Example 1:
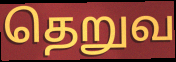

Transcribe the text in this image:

தெறுவ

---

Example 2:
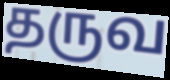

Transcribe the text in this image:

தருவ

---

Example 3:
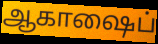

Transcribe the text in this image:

ஆகாஷைப்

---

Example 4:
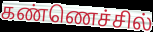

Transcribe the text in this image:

கண்ணெச்சில்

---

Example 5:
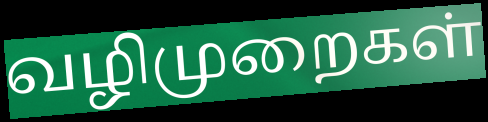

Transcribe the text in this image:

வழிமுறைகள்